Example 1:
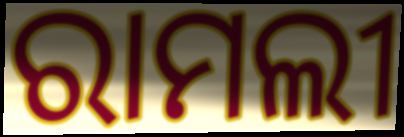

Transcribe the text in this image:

ରାମଲୀ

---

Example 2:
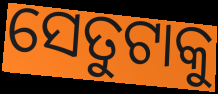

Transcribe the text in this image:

ସେତୁଟାକୁ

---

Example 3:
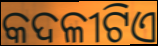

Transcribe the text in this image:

କଦଳୀଟିଏ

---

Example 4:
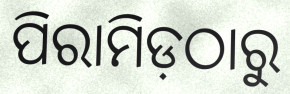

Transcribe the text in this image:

ପିରାମିଡ଼ଠାରୁ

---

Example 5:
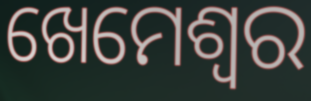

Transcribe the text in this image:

ଖେମେଶ୍ଵର